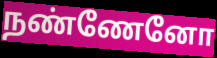
நண்ணேனோ